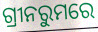
ଗ୍ରୀନରୁମରେ